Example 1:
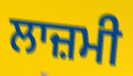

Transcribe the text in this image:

ਲਾਜ਼ਮੀ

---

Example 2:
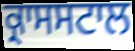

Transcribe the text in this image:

ਕ੍ਰਾਸਸਟਾਲ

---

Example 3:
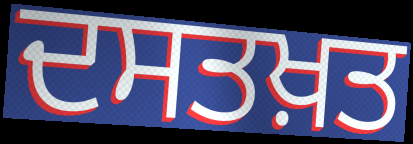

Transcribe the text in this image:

ਦਸਤਖ਼ਤ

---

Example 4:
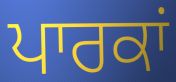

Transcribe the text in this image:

ਪਾਰਕਾਂ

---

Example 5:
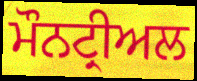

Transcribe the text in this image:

ਮੌਨਟ੍ਰੀਅਲ